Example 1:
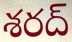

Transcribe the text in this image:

శరద్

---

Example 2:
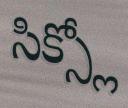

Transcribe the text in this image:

సిక్స్లో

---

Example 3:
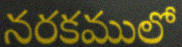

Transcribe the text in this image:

నరకములో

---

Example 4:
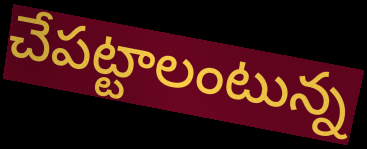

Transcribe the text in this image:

చేపట్టాలంటున్న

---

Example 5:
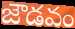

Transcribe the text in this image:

జౌడవం